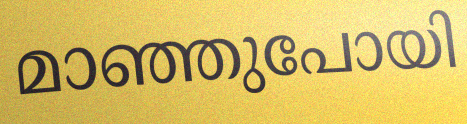
മാഞ്ഞുപോയി